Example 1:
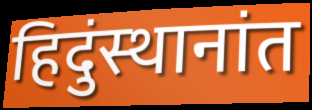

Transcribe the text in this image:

हिदुंस्थानांत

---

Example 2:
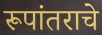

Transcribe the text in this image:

रूपांतराचे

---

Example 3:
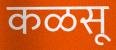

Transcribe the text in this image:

कळसू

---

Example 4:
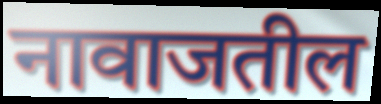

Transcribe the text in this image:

नावाजतील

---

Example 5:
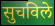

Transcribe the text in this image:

सुचविले